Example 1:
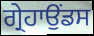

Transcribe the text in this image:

ਗ੍ਰੇਹਾਉਂਡਸ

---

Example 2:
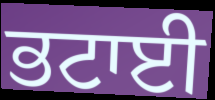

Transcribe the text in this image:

ਭਟਾਈ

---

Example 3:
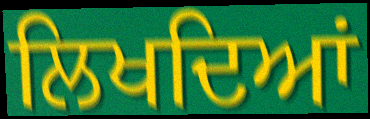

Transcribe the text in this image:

ਲਿਖਦਿਆਂ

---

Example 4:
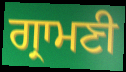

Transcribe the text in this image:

ਗ੍ਰਾਮਣੀ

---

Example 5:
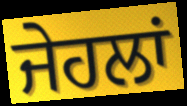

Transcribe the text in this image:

ਜੇਹਲਾਂ